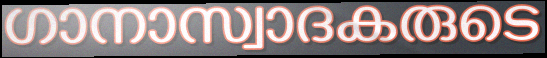
ഗാനാസ്വാദകരുടെ